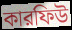
কারফিউ